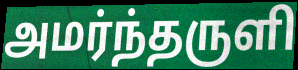
அமர்ந்தருளி